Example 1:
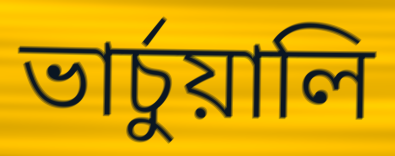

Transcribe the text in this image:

ভার্চুয়ালি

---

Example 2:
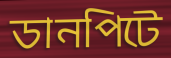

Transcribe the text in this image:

ডানপিটে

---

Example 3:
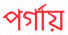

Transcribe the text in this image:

পর্গায়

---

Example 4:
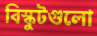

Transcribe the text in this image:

বিস্কুটগুলো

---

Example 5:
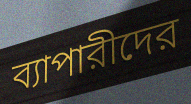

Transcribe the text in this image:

ব্যাপারীদের